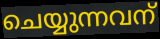
ചെയ്യുന്നവന്